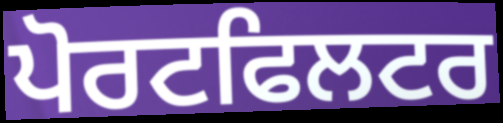
ਪੋਰਟਫਿਲਟਰ